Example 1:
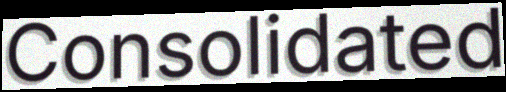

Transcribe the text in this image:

Consolidated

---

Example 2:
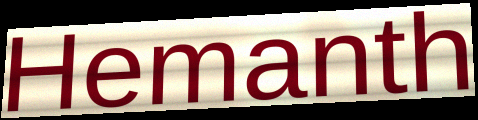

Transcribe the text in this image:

Hemanth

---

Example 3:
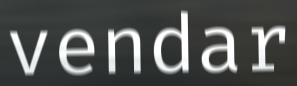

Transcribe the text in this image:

vendar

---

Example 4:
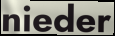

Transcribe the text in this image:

nieder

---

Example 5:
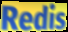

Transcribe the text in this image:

Redis